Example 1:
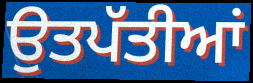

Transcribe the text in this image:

ਉਤਪੱਤੀਆਂ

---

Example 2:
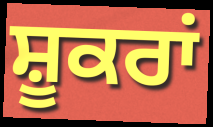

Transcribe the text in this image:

ਸ਼ੂਕਰਾਂ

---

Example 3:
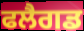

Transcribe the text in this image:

ਫਲੈਗਡ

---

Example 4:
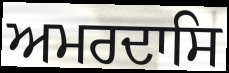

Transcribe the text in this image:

ਅਮਰਦਾਸਿ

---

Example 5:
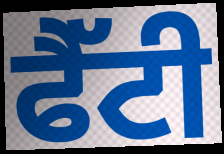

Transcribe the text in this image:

ਫੈੱਟੀ